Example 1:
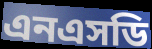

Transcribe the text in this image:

এনএসডি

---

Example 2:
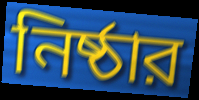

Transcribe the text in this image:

নিষ্ঠার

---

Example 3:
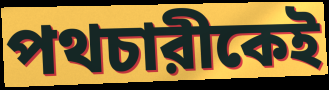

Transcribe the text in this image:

পথচারীকেই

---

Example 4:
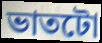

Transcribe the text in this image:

ভাতটো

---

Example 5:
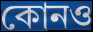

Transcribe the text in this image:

কোনও